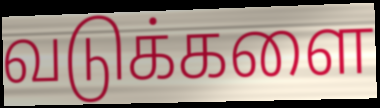
வடுக்களை